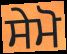
ਸੇਮੋ